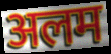
अलम